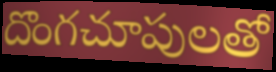
దొంగచూపులతో